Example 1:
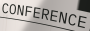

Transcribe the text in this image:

CONFERENCE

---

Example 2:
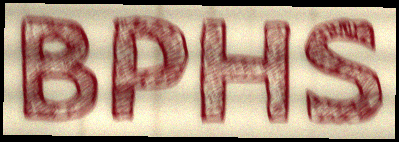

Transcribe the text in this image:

BPHS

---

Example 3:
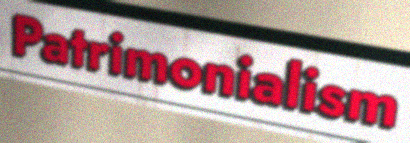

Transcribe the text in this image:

Patrimonialism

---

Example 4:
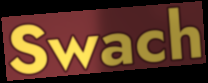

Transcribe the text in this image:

Swach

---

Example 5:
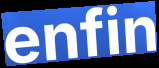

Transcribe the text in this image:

enfin